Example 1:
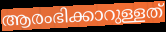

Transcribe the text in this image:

ആരംഭിക്കാറുള്ളത്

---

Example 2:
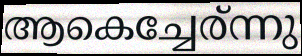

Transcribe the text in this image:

ആകെച്ചേര്ന്നു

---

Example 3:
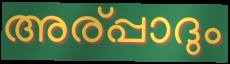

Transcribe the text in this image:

അര്പ്പാദും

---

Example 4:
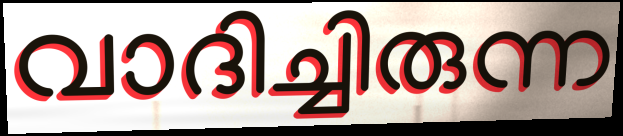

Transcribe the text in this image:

വാദിച്ചിരുന്ന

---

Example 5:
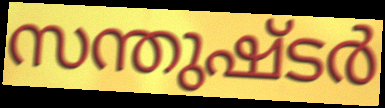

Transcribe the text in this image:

സന്തുഷ്ടർ